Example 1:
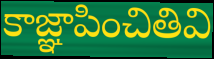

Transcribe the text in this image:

కాజ్ఞాపించితివి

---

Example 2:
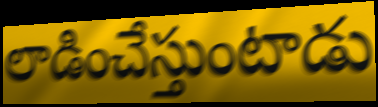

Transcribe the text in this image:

లాడించేస్తుంటాడు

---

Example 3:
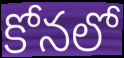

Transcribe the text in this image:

కోనలో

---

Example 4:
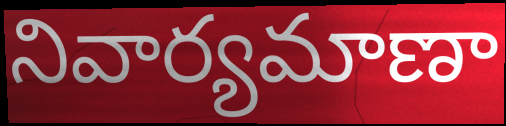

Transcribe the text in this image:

నివార్యమాణా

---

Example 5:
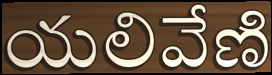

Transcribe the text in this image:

యలివేణి